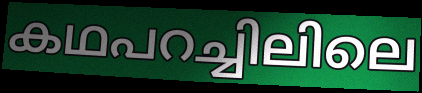
കഥപറച്ചിലിലെ